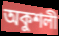
অকুশলী